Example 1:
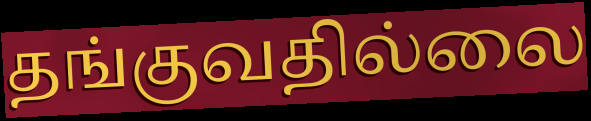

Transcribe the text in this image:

தங்குவதில்லை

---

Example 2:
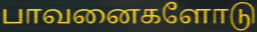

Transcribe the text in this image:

பாவனைகளோடு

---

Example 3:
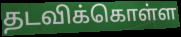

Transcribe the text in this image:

தடவிக்கொள்ள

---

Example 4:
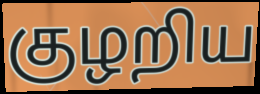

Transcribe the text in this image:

குழறிய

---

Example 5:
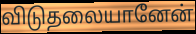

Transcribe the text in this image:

விடுதலையானேன்